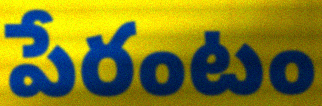
పేరంటం